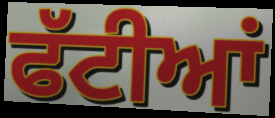
ਫੱਟੀਆਂ